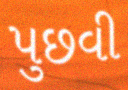
પુછવી